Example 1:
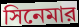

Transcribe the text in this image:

সিনেমার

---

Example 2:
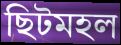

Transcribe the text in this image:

ছিটমহল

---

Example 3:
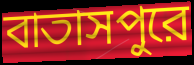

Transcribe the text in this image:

বাতাসপুরে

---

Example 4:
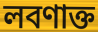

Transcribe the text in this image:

লবণাক্ত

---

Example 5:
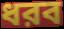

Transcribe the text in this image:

ধরব